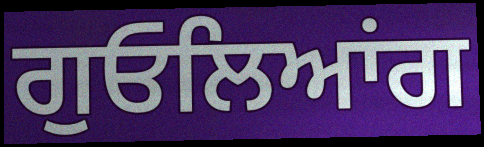
ਗੁਓਲਿਆਂਗ